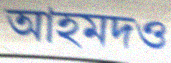
আহমদও